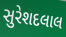
સુરેશદલાલ